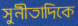
সুনীতাদিকে